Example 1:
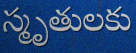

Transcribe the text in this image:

స్మృతులకు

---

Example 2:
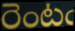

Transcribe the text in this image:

రెంటఁ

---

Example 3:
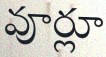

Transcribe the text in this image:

వూర్లూ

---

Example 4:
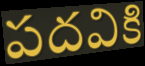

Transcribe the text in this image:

పదవికి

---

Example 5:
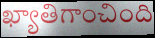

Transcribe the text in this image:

ఖ్యాతిగాంచింది